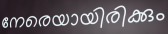
നേരെയായിരിക്കും